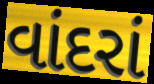
વાંદરાં